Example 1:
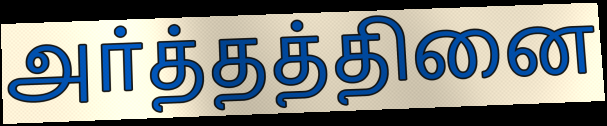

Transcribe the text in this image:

அர்த்தத்தினை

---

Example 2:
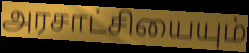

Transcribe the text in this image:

அரசாட்சியையும்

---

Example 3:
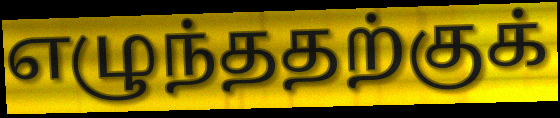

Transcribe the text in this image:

எழுந்ததற்குக்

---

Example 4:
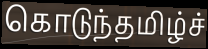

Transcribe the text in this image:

கொடுந்தமிழ்ச்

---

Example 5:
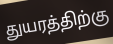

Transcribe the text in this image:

துயரத்திற்கு